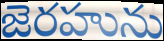
జెరహును